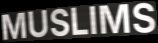
MUSLIMS